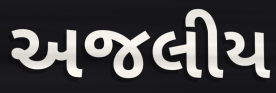
અજલીય